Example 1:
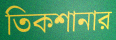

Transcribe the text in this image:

তিকশানার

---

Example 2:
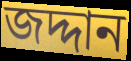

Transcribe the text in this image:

জদ্দান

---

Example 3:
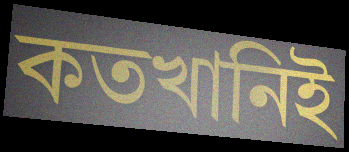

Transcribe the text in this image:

কতখানিই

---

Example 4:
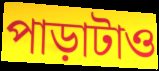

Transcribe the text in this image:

পাড়াটাও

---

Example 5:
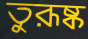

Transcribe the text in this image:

তুরূষ্ক